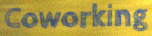
Coworking